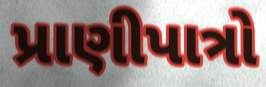
પ્રાણીપાત્રો